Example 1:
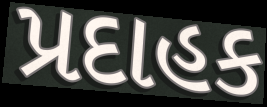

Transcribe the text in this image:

પ્રદાહક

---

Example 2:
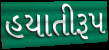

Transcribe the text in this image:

હયાતીરૂપ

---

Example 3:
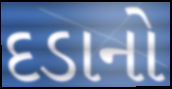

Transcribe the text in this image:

દડાનો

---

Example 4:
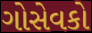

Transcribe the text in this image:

ગોસેવકો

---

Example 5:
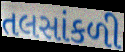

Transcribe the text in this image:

તલસાંકળી